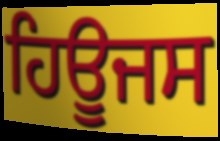
ਹਿਊਜਸ